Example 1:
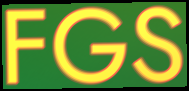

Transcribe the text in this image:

FGS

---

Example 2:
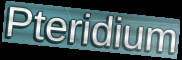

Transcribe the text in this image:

Pteridium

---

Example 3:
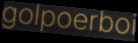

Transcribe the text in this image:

golpoerboi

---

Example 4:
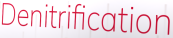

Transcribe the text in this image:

Denitrification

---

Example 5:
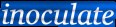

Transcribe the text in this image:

inoculate